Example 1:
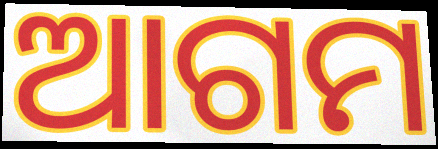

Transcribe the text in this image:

ଆଗମ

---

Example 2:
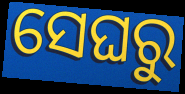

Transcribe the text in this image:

ସେଘରୁ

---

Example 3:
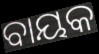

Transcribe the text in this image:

ବାୟକ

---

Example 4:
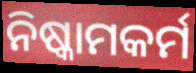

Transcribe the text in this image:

ନିଷ୍କାମକର୍ମ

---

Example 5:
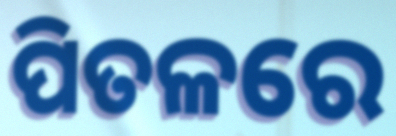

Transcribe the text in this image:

ପିତଳରେ